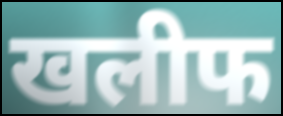
खलीफ